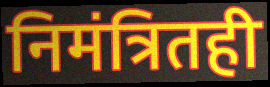
निमंत्रितही